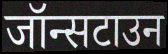
जॉन्सटाउन